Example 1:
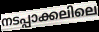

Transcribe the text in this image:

നടപ്പാക്കലിലെ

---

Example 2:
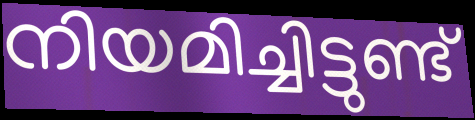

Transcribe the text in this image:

നിയമിച്ചിട്ടുണ്ട്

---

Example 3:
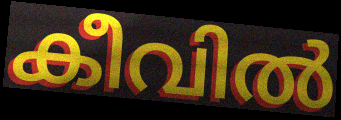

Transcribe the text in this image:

കീവിൽ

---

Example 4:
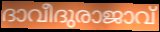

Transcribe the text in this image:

ദാവീദുരാജാവ്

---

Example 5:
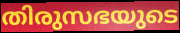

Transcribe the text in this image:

തിരുസഭയുടെ